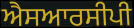
ਐਸਆਰਸੀਪੀ